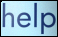
help